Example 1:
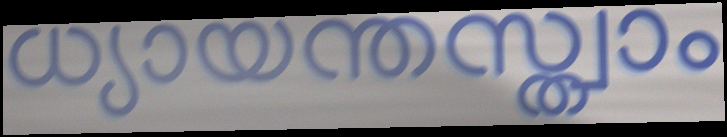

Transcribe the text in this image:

ധ്യായന്തസ്ത്വാം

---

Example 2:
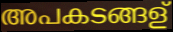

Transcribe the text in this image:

അപകടങ്ങള്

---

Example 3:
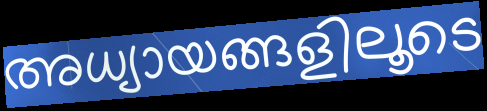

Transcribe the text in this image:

അധ്യായങ്ങളിലൂടെ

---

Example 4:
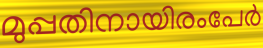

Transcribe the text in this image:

മുപ്പതിനായിരംപേർ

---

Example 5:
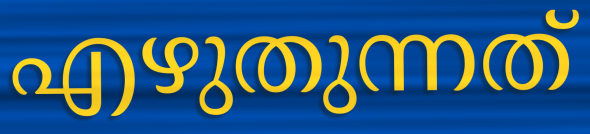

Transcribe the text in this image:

എഴുതുന്നത്